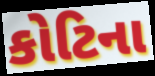
કોટિના